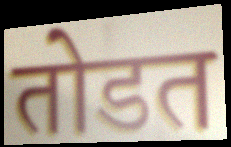
तोडत